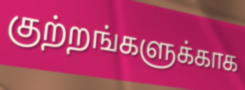
குற்றங்களுக்காக